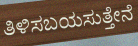
ತಿಳಿಸಬಯಸುತ್ತೇನೆ